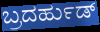
ಬ್ರದರ್ಹುಡ್